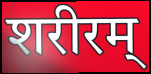
शरीरम्